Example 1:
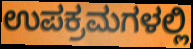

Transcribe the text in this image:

ಉಪಕ್ರಮಗಳಲ್ಲಿ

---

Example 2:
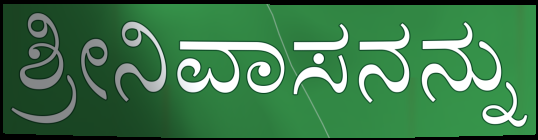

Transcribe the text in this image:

ಶ್ರೀನಿವಾಸನನ್ನು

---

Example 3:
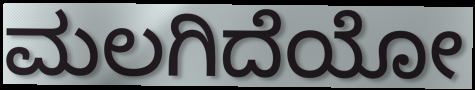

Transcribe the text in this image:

ಮಲಗಿದೆಯೋ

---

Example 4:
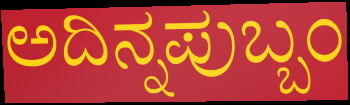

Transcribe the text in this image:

ಅದಿನ್ನಪುಬ್ಬಂ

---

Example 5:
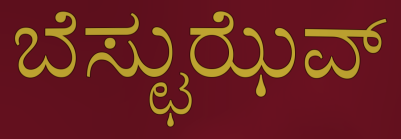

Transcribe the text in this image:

ಬೆಸ್ಟುಝೆವ್